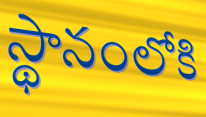
స్థానంలోకి